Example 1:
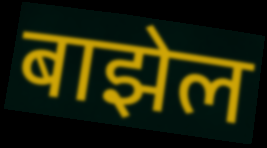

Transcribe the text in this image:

बाझेल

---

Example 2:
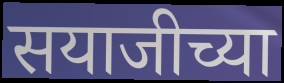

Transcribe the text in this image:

सयाजीच्या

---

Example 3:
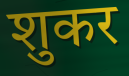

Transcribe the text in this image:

शुकर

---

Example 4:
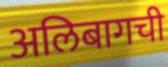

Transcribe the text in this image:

अलिबागची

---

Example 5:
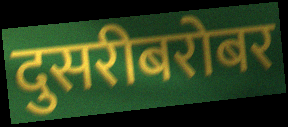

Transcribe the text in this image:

दुसरीबरोबर